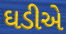
ઘડીએ